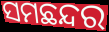
ସମଛନ୍ଦର